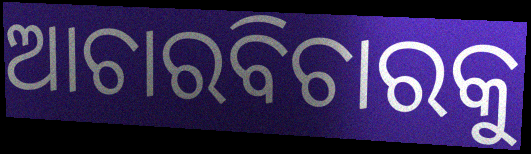
ଆଚାରବିଚାରକୁ